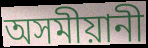
অসমীয়ানী